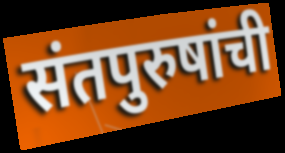
संतपुरुषांची